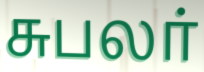
சுபலர்